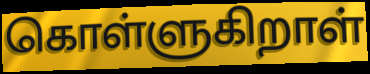
கொள்ளுகிறாள்